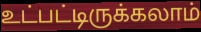
உட்பட்டிருக்கலாம்